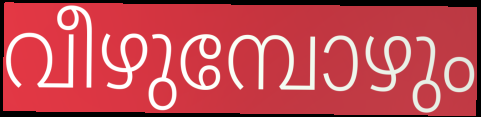
വീഴുമ്പോഴും